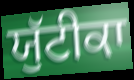
ਯੁੱਟੀਕਾ